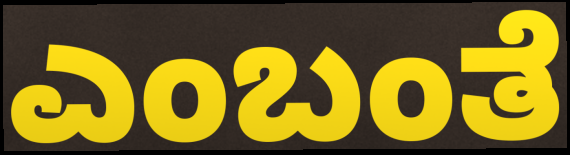
ಎಂಬಂತೆ